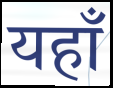
यहाँ